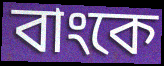
বাংকে